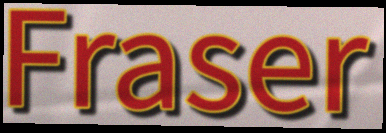
Fraser